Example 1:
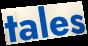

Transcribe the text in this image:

tales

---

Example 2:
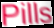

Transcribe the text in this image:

Pills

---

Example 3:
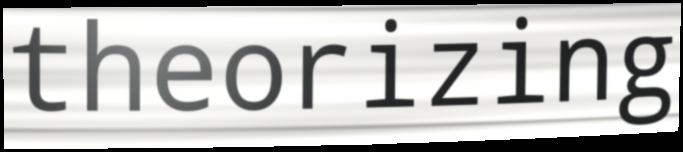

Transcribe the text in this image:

theorizing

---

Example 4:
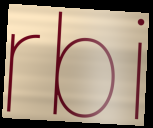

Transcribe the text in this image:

rbi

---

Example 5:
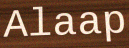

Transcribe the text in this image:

Alaap